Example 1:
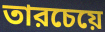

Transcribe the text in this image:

তারচেয়ে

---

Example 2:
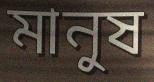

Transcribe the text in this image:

মানুষ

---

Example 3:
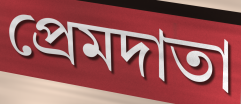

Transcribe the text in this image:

প্রেমদাতা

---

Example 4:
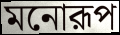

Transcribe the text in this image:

মনোরূপ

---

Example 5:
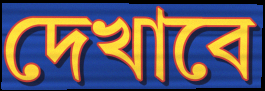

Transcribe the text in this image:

দেখাবে